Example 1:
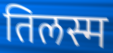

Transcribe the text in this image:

तिलस्म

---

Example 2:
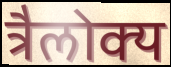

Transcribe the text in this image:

त्रैलोक्य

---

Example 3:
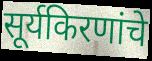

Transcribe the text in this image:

सूर्यकिरणांचे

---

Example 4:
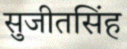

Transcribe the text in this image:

सुजीतसिंह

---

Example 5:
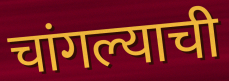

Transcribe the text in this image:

चांगल्याची